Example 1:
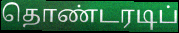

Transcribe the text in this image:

தொண்டரடிப்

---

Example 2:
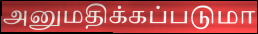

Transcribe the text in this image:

அனுமதிக்கப்படுமா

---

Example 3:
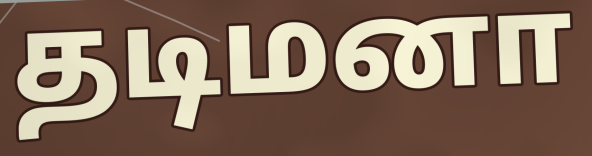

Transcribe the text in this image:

தடிமனா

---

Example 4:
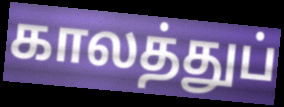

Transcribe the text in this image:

காலத்துப்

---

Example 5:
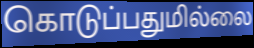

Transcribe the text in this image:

கொடுப்பதுமில்லை